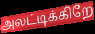
அலட்டிக்கிறே